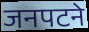
जनपटने